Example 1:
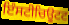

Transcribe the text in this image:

ਇੰਸਟੀਚਿਊਟਟ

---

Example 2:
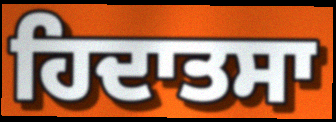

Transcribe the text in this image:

ਹਿਦਾਤਸਾ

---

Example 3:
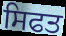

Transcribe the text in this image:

ਸਿਫਤ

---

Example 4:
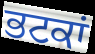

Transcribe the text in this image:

ਭਟਕਾਂ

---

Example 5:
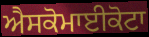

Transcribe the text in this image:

ਐਸਕੋਮਾਈਕੋਟਾ